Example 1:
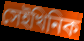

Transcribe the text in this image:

সেইখিনিক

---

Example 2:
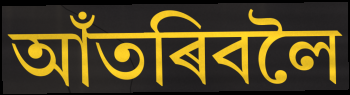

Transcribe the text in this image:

আঁতৰিবলৈ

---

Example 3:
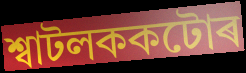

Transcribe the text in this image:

শ্বাটলককটোৰ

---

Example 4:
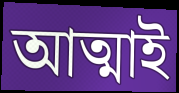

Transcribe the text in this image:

আত্মাই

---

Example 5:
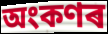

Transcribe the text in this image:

অংকণৰ